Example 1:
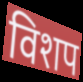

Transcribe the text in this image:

विशप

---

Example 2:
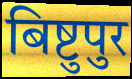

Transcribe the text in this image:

बिष्टुपुर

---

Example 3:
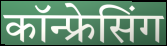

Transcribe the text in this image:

कॉन्फ्रेसिंग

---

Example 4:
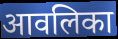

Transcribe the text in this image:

आवलिका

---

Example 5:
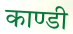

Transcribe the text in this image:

काण्डी